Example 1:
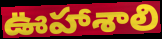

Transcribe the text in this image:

ఊహాశాలి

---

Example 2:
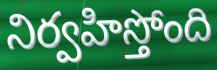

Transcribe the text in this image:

నిర్వహిస్తోంది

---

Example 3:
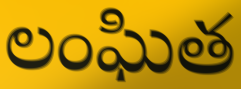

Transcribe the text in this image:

లంఘిత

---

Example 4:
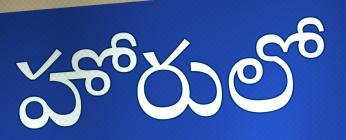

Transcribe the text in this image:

హోరులో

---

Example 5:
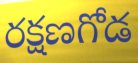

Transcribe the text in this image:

రక్షణగోడ